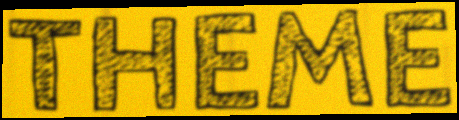
THEME